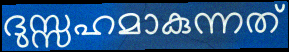
ദുസ്സഹമാകുന്നത്